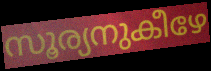
സൂര്യനുകീഴേ